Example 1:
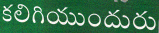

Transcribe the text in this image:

కలిగియుందురు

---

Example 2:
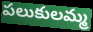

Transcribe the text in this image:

పలుకులమ్మ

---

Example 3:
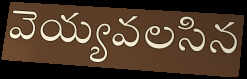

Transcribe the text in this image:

వెయ్యవలసిన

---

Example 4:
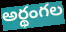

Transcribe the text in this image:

అర్థంగల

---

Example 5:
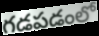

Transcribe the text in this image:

గడపడంలో